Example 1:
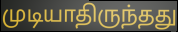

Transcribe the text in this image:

முடியாதிருந்தது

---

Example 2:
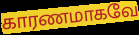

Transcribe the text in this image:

காரணமாகவே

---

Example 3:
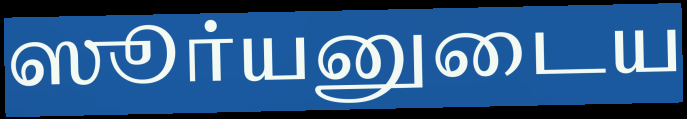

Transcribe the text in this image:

ஸூர்யனுடைய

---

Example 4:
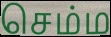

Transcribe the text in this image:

செம்ம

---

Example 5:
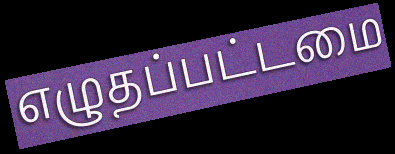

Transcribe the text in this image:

எழுதப்பட்டமை